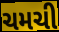
ચમચી